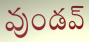
వుండవ్